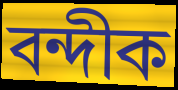
বন্দীক